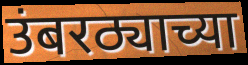
उंबरठ्याच्या